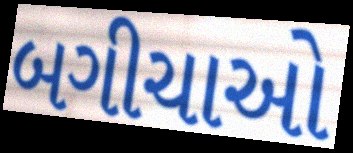
બગીચાઓ